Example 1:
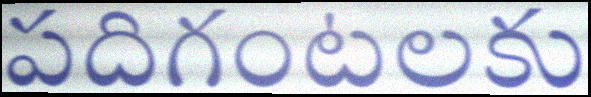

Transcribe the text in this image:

పదిగంటలకు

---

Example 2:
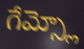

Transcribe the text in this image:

గేమ్స్లో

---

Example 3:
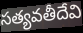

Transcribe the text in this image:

సత్యవతీదేవి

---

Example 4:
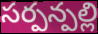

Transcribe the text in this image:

సర్పన్పల్లి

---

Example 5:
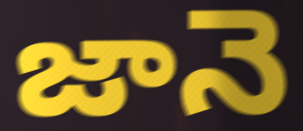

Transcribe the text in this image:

జానె